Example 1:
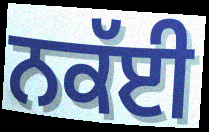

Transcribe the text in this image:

ਨਕੱਈ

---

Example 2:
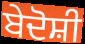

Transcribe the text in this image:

ਬੇਦੋਸ਼ੀ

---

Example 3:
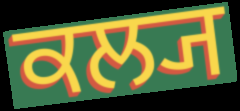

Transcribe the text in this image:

ਕਲ੍ਯ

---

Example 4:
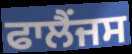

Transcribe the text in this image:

ਫਾਲੈਂਜਸ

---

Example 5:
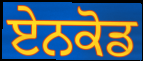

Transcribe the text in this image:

ਏਨਕੋਡ